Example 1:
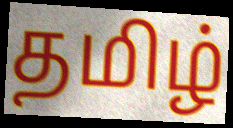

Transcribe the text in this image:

தமிழ்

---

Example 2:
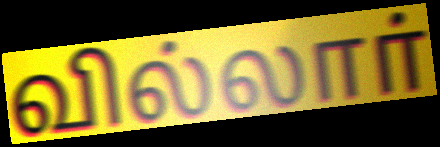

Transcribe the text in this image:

வில்லார்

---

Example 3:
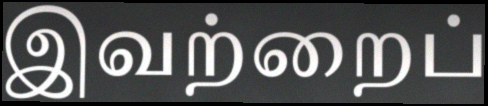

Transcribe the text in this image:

இவற்றைப்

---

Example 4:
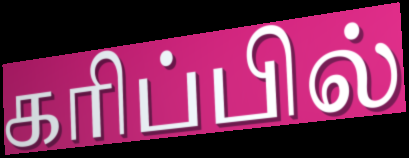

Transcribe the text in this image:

கரிப்பில்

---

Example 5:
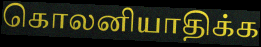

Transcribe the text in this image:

கொலனியாதிக்க